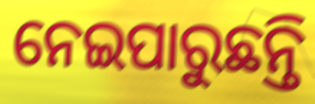
ନେଇପାରୁଛନ୍ତି